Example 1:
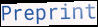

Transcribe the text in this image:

Preprint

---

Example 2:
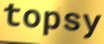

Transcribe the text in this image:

topsy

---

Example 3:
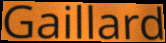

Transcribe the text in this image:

Gaillard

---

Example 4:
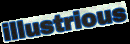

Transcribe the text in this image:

illustrious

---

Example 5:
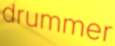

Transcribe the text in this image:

drummer